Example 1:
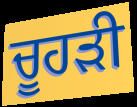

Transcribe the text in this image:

ਚੂਹੜੀ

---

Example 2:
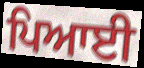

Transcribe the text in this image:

ਪਿਆਈ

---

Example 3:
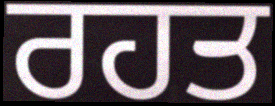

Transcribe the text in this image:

ਰਹਤ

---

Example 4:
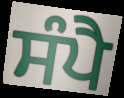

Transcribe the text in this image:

ਸੰਪੈ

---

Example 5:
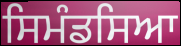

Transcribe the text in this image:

ਸਿਮੰਡਸਿਆ